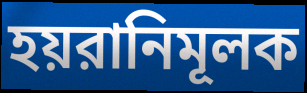
হয়রানিমূলক